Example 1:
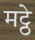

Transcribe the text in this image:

मट्ठे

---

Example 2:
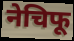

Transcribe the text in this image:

नेचिफू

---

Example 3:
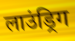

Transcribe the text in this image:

लाउंड्रिग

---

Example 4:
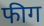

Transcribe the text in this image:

फीग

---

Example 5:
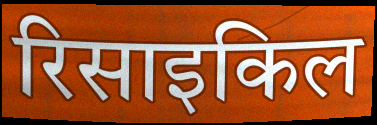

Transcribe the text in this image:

रिसाइकिल